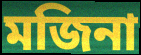
মজিনা